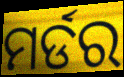
ମର୍ଡର